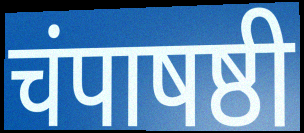
चंपाषष्ठी